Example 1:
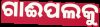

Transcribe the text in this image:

ଗାଈପଲକୁ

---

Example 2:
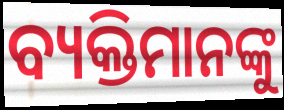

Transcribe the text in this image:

ବ୍ୟକ୍ତିମାନଙ୍କୁ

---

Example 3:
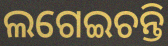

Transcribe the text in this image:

ଲଗେଇଚନ୍ତି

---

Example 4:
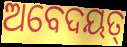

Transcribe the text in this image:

ଅବେଦୟତ୍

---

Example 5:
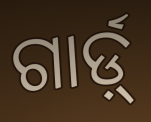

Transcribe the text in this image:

ଗାର୍ଡ଼୍